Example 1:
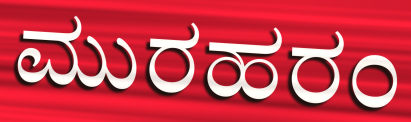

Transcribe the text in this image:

ಮುರಹರಂ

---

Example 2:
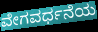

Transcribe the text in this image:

ವೇಗವರ್ಧನೆಯ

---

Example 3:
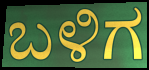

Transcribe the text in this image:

ಬಳಿಗ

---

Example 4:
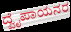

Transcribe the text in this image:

ದ್ವೈಪಾಯನರ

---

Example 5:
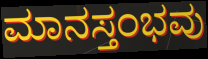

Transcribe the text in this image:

ಮಾನಸ್ತಂಭವು